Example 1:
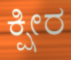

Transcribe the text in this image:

ಕ್ಷೀರ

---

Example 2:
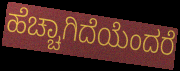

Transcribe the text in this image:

ಹೆಚ್ಚಾಗಿದೆಯೆಂದರೆ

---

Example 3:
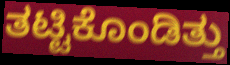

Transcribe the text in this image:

ತಟ್ಟಿಕೊಂಡಿತ್ತು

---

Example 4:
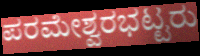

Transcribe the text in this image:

ಪರಮೇಶ್ವರಭಟ್ಟರು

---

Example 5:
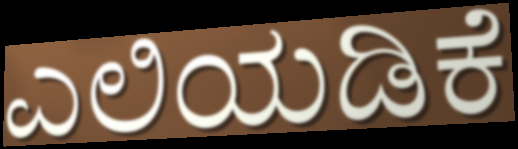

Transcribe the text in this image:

ಎಲಿಯಡಿಕೆ